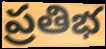
ప్రతిభ